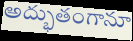
అద్భుతంగానూ